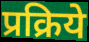
प्रक्रिये